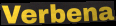
Verbena